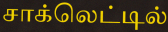
சாக்லெட்டில்